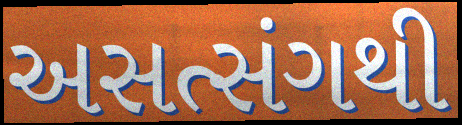
અસત્સંગથી